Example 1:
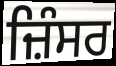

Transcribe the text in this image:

ਜ਼ਿੰਸਰ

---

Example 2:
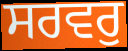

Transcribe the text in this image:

ਸਰਵਰੁ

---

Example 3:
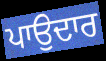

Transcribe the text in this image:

ਪਾਉਦਾਰ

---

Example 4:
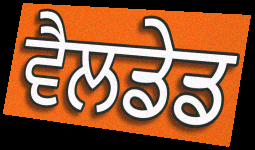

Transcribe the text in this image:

ਵੈਲਡੇਡ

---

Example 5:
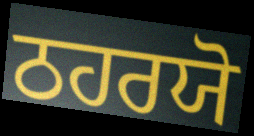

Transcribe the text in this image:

ਠਹਰਯੋ